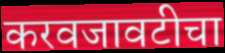
करवजावटीचा